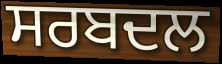
ਸਰਬਦਲ